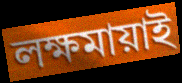
লক্ষমায়াই